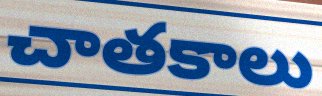
చాతకాలు